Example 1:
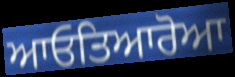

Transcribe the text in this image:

ਆਓਤਿਆਰੋਆ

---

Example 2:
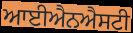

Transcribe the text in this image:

ਆਈਐਨਐਸਟੀ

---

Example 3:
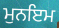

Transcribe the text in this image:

ਮੁਨਇਮ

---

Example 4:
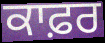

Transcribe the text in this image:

ਕਾਫ਼ਰ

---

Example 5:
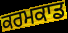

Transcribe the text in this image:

ਕਰਮਕਾਡ